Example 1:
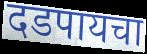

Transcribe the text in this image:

दडपायचा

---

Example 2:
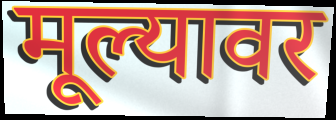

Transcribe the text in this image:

मूल्यावर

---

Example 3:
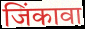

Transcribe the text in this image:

जिंकावा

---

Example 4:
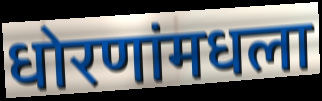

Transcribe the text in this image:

धोरणांमधला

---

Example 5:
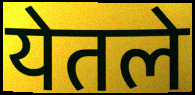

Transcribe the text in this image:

येतले